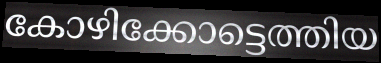
കോഴിക്കോട്ടെത്തിയ